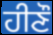
ਹੀਣੌ